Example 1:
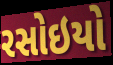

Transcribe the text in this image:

રસોઇયો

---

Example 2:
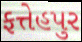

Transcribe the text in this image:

ફત્તેહપુર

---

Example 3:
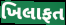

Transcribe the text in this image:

ખિલાફત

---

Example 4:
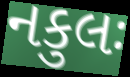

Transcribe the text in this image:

નકુલઃ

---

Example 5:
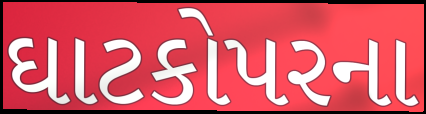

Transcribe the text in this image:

ઘાટકોપરના